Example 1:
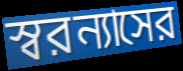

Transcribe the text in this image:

স্বরন্যাসের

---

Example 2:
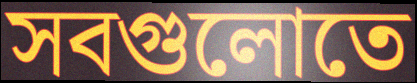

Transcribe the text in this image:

সবগুলোতে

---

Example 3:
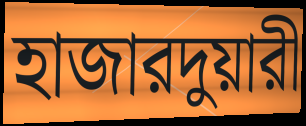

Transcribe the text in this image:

হাজারদুয়ারী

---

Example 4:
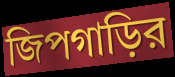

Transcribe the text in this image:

জিপগাড়ির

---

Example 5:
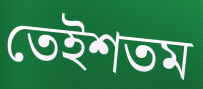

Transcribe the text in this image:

তেইশতম